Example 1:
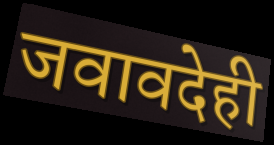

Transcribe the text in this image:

जवावदेही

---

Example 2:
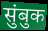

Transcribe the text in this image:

सुंबुक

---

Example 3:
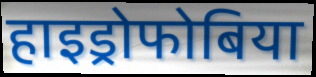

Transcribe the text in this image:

हाइड्रोफोबिया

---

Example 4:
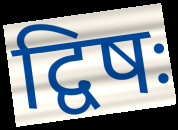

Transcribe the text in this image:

द्विषः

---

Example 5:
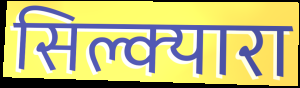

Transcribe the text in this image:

सिल्क्यारा